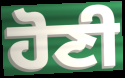
ਹੋਣੀ